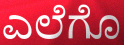
ಎಲೆಗೊ